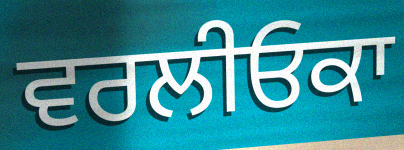
ਵਰਲੀਓਕਾ